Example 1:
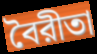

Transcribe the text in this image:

বৈরীতা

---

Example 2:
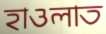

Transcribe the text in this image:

হাওলাত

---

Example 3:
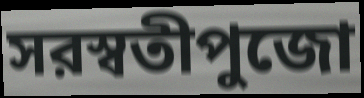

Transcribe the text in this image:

সরস্বতীপুজো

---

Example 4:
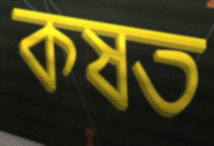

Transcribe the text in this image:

কষত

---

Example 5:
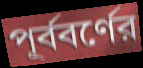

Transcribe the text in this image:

পূর্ববর্ণের